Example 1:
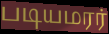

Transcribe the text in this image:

படியமரர்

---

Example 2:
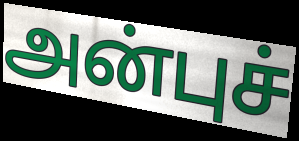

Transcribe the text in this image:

அன்புச்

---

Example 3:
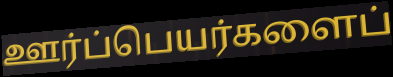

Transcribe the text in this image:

ஊர்ப்பெயர்களைப்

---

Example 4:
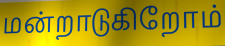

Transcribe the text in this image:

மன்றாடுகிறோம்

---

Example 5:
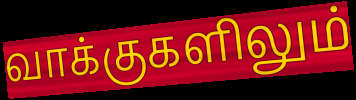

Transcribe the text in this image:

வாக்குகளிலும்